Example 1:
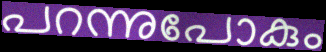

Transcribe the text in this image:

പറന്നുപോകും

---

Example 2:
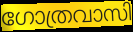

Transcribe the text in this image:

ഗോത്രവാസി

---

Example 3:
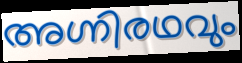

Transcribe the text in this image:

അഗ്നിരഥവും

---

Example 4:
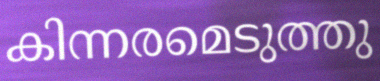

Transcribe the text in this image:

കിന്നരമെടുത്തു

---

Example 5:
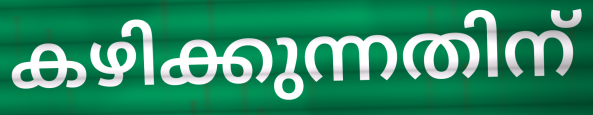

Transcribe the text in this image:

കഴിക്കുന്നതിന്